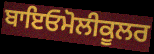
ਬਾਇਓਮੋਲੀਕੂਲਰ